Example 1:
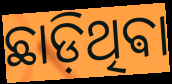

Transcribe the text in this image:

ଛାଡ଼ିଥିଵା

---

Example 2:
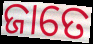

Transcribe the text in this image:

ଜାତେ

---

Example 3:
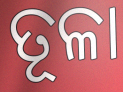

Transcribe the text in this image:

ତୂଳା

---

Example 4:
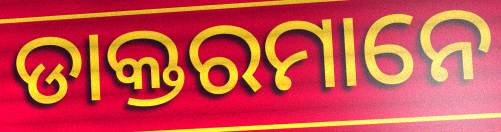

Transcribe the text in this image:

ଡାକ୍ତରମାନେ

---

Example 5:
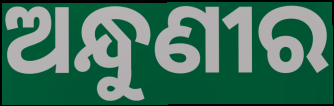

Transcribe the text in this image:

ଅନ୍ଧୁଣୀର